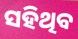
ସହିଥିବ